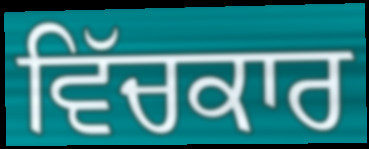
ਵਿੱਚਕਾਰ